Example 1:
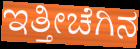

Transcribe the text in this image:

ಇತ್ತೀಚೆಗಿನ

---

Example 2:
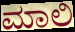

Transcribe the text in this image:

ಮಾಲಿ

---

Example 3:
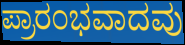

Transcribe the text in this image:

ಪ್ರಾರಂಭವಾದವು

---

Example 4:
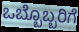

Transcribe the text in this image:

ಒಬ್ಬೊಬ್ಬರಿಗೆ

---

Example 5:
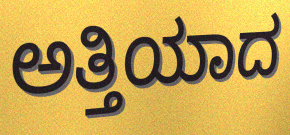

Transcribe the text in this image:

ಅತ್ತಿಯಾದ